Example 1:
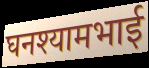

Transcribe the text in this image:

घनश्यामभाई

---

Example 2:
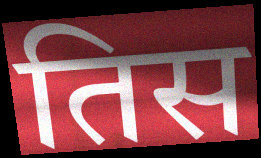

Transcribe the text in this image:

तिस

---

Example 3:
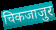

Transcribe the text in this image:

चिकजाजुर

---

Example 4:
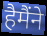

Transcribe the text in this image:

हैमैंने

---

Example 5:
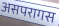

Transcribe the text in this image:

असपरागस